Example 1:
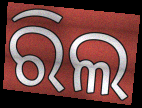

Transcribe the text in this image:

ରିଲ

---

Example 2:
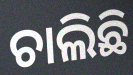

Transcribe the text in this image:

ଚାଲିଛି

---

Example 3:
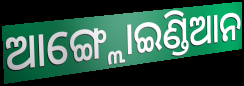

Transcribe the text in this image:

ଆଙ୍ଗ୍ଲୋଇଣ୍ଡିଆନ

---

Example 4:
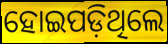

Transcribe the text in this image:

ହୋଇପଡ଼ିଥିଲେ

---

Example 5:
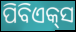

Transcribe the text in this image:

ପିବିଏକ୍‌ସ